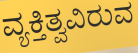
ವ್ಯಕ್ತಿತ್ವವಿರುವ